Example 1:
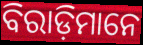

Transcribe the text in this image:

ବିରାଡ଼ିମାନେ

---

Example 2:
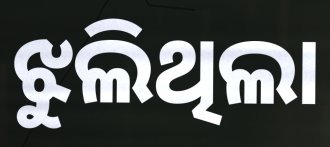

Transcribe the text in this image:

ଝୁଲିଥିଲା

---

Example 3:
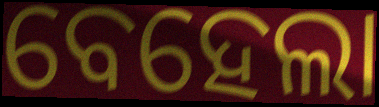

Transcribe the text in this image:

ବେହେଲା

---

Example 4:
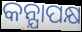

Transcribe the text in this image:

କନ୍ଯାପକ୍ଷ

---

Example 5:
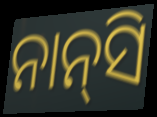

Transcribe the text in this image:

ନାନ୍‌ସି